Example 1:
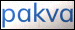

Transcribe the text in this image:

pakva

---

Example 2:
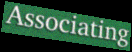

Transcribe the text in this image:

Associating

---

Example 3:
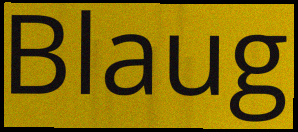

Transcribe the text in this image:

Blaug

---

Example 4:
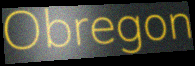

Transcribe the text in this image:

Obregon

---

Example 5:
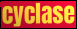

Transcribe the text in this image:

cyclase